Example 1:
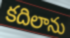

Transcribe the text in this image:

కదిలాను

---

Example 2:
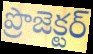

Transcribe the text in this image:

ప్రొజెక్టర్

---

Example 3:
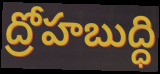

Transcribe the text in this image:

ద్రోహబుద్ధి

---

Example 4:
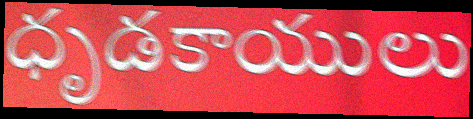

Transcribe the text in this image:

ధృడకాయులు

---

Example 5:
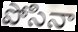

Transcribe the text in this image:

పోసినా